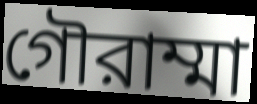
গৌরাম্মা